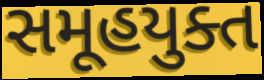
સમૂહયુક્ત